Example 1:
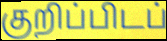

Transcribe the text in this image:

குறிப்பிடப்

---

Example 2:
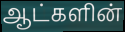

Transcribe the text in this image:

ஆட்களின்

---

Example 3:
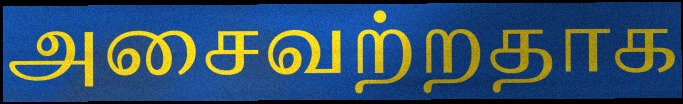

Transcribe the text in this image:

அசைவற்றதாக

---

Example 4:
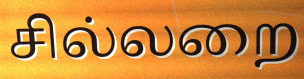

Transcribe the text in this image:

சில்லறை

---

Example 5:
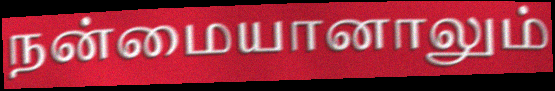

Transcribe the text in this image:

நன்மையானாலும்